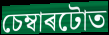
চেম্বাৰটোত